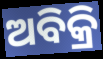
ଅବିକ୍ରି